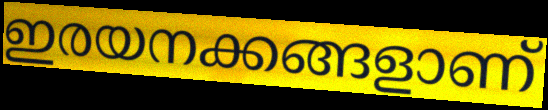
ഇരയനക്കങ്ങളാണ്